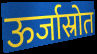
ऊर्जास्रोत